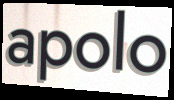
apolo